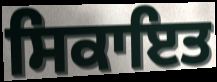
ਸਿਕਾਇਤ